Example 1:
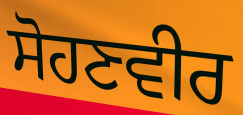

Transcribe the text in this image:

ਸੋਹਣਵੀਰ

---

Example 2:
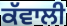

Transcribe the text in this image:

ਕੱਵਾਲੀ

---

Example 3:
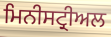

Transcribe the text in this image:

ਮਿਨੀਸਟ੍ਰੀਅਲ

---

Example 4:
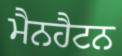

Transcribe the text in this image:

ਮੈਨਹੈਟਨ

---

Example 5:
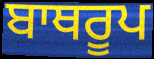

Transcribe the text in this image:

ਬਾਥਰੂਪ